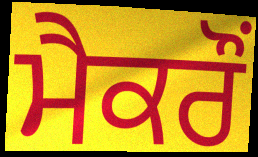
ਮੈਕਰੌਂ